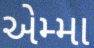
એમ્મા